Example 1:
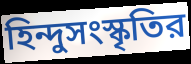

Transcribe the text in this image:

হিন্দুসংস্কৃতির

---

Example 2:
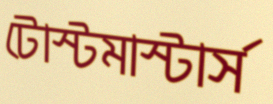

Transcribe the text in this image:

টোস্টমাস্টার্স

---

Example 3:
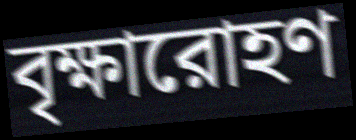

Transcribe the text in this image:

বৃক্ষারোহণ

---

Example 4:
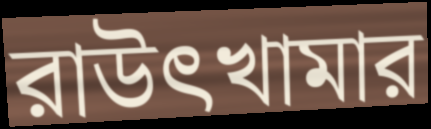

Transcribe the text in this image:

রাউৎখামার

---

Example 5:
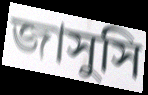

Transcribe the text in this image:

জাসুসি